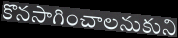
కొనసాగించాలనుకుని